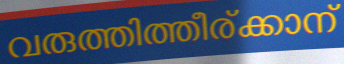
വരുത്തിത്തീര്ക്കാന്